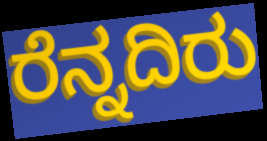
ರೆನ್ನದಿರು